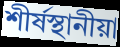
শীর্ষস্থানীয়া